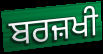
ਬਰਜ਼ਖੀ